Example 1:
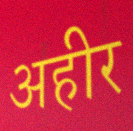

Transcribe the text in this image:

अहीर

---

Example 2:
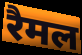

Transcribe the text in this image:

रैमल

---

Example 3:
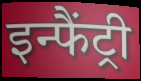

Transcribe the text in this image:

इन्फैंट्री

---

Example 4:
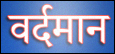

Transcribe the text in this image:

वर्दमान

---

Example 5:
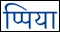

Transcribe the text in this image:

प्पिया